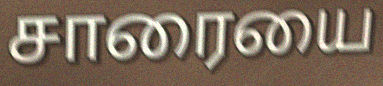
சாரையை